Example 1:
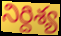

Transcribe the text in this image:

నిర్దిశ్య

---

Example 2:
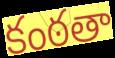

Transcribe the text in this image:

కంఠతా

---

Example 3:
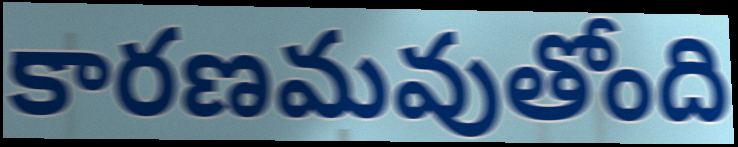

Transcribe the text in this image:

కారణమవుతోంది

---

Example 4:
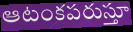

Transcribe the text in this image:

ఆటంకపరుస్తూ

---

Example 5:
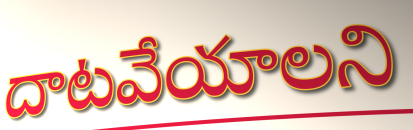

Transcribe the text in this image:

దాటవేయాలని